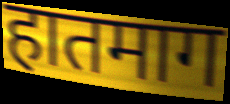
हातमाग